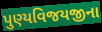
પુણ્યવિજયજીના